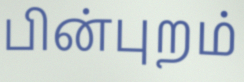
பின்புறம்